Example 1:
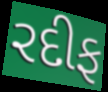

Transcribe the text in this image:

રદીફ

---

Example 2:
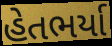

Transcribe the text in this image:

હેતભર્યા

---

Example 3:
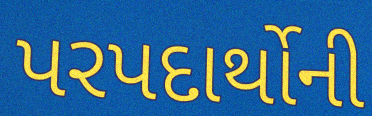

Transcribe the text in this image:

પરપદાર્થોની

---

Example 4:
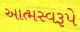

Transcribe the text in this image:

આત્મસ્વરૂપે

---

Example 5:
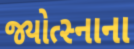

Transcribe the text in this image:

જ્યોત્સ્નાના